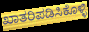
ಖಾತರಿಪಡಿಸಿಕೊಳ್ಳಿ